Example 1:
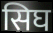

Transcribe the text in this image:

सिघ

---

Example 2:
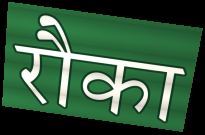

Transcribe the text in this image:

रौका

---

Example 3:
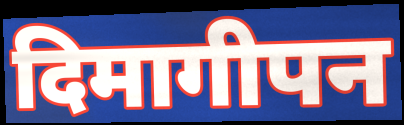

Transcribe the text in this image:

दिमागीपन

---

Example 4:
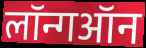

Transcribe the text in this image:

लॉन्गऑन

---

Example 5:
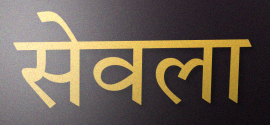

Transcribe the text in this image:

सेवला